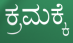
ಕ್ರಮಕ್ಕೆ